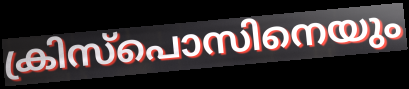
ക്രിസ്പൊസിനെയും